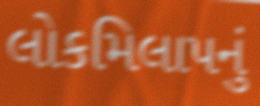
લોકમિલાપનું